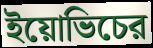
ইয়োভিচের